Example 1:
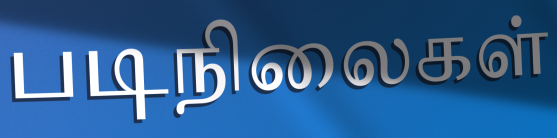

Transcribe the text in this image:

படிநிலைகள்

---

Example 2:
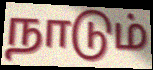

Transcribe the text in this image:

நாடும்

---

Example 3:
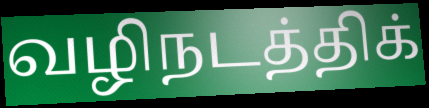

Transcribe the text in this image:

வழிநடத்திக்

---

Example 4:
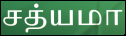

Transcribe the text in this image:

சத்யமா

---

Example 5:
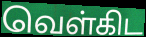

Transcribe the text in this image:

வெள்கிட